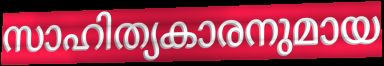
സാഹിത്യകാരനുമായ